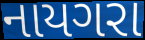
નાયગરા